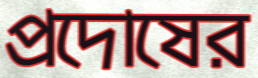
প্রদোষের